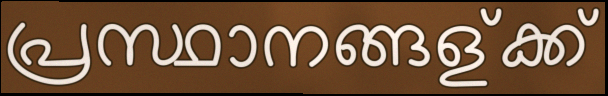
പ്രസ്ഥാനങ്ങള്ക്ക്